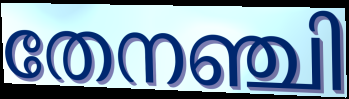
തേനഞ്ചി